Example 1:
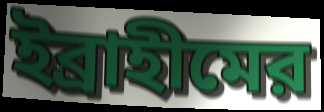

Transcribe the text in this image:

ইব্রাহীমের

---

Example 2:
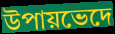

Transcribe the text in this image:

উপায়ভেদে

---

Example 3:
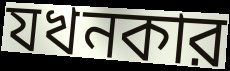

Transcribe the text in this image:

যখনকার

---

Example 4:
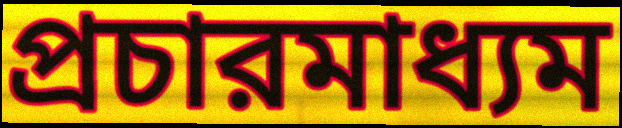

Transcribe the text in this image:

প্রচারমাধ্যম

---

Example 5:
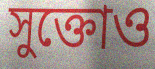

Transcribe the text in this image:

সুক্তোও